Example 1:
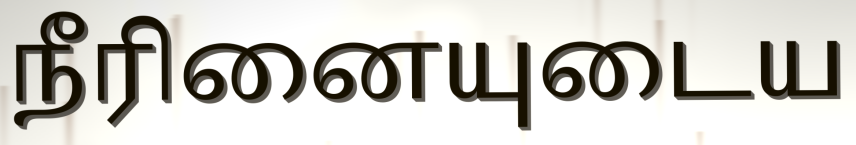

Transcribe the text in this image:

நீரினையுடைய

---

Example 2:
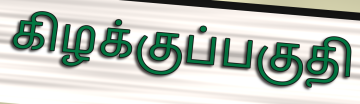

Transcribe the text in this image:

கிழக்குப்பகுதி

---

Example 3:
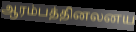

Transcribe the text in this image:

ஆரம்பத்தினலனய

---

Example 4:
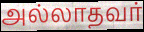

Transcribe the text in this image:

அல்லாதவர்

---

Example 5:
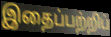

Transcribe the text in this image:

இதைப்பற்றிப்